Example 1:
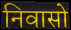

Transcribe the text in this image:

निवासो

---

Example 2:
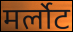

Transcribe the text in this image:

मर्लोट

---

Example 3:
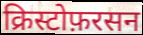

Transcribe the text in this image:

क्रिस्टोफ़रसन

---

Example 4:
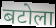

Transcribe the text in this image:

बटोला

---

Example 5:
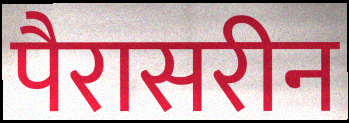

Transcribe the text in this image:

पैरासरीन